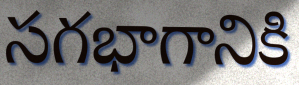
సగభాగానికి